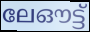
ലേഔട്ട്